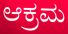
ಆಕ್ರಮ